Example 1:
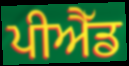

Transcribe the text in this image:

ਪੀਐੱਡ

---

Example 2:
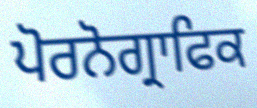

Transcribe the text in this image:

ਪੋਰਨੋਗ੍ਰਾਫਿਕ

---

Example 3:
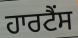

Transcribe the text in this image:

ਹਾਰਟੈਂਸ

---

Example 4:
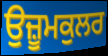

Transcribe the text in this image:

ਉਜ਼ੂਮਕੁਲਰ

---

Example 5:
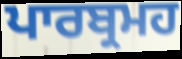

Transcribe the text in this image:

ਪਾਰਬ੍ਰਮਹ